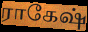
ராகேஷ்